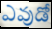
ఎవుడో